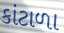
કાંટાળા